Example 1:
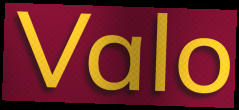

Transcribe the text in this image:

Valo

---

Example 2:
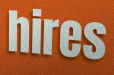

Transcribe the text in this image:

hires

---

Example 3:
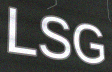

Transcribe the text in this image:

LSG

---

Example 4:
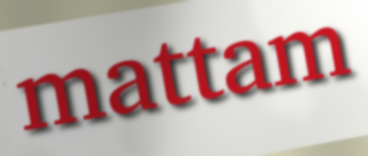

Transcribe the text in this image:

mattam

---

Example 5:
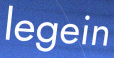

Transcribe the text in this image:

legein